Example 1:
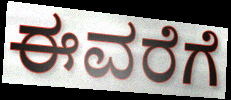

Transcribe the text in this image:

ಈವರೆಗೆ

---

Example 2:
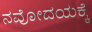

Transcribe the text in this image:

ನವೋದಯಕ್ಕೆ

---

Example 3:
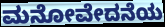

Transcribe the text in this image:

ಮನೋವೇದನೆಯ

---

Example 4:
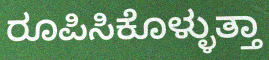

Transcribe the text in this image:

ರೂಪಿಸಿಕೊಳ್ಳುತ್ತಾ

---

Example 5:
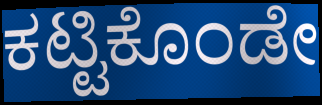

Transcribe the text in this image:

ಕಟ್ಟಿಕೊಂಡೇ